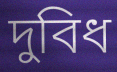
দুবিধ